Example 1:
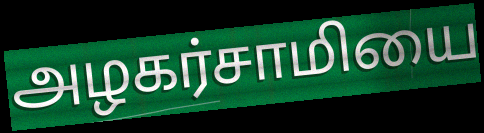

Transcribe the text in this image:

அழகர்சாமியை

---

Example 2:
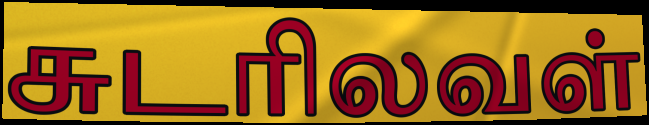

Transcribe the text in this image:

சுடரிலவள்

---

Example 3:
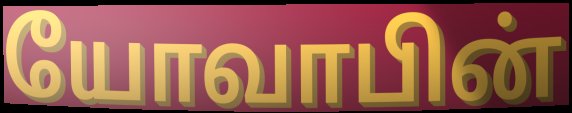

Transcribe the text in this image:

யோவாபின்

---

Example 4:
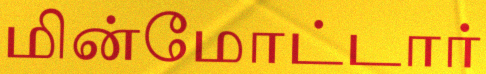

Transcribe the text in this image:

மின்மோட்டார்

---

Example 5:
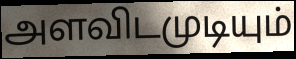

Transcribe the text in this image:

அளவிடமுடியும்